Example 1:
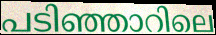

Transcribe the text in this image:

പടിഞ്ഞാറിലെ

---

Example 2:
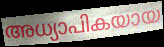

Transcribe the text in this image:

അധ്യാപികയായ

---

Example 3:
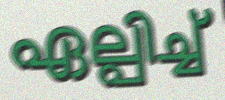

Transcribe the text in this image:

ഏല്പിച്ച്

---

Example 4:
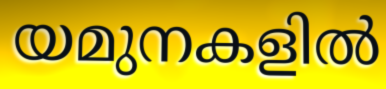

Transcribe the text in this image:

യമുനകളിൽ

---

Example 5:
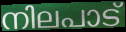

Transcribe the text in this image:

നിലപാട്